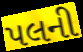
પલની